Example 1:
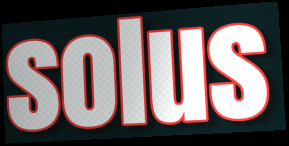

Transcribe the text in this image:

solus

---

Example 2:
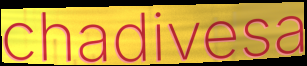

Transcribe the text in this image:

chadivesa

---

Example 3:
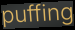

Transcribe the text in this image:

puffing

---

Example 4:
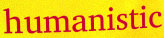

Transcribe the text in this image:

humanistic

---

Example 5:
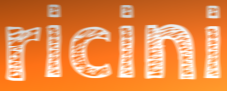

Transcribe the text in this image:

ricini